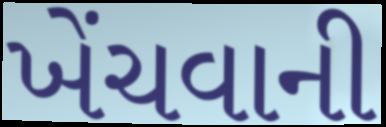
ખેંચવાની